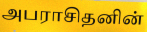
அபராசிதனின்